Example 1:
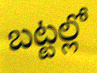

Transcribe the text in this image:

బట్టల్లో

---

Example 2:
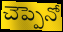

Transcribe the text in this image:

చెప్పెనో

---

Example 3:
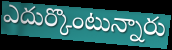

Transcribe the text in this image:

ఎదుర్కొంటున్నారు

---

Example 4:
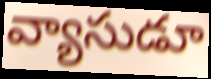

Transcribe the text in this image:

వ్యాసుడూ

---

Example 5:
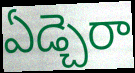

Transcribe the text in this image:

ఏడ్చెరా